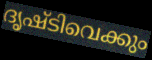
ദൃഷ്ടിവെക്കും